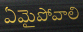
ఏమైపోవాలి